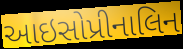
આઇસોપ્રીનાલિન